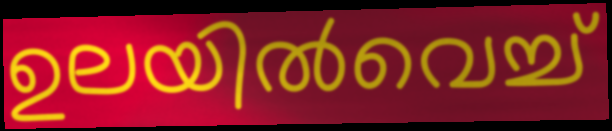
ഉലയിൽവെച്ച്